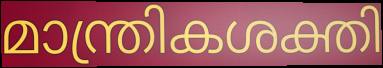
മാന്ത്രികശക്തി